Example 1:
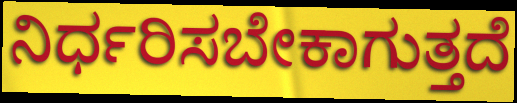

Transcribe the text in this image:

ನಿರ್ಧರಿಸಬೇಕಾಗುತ್ತದೆ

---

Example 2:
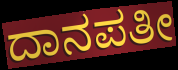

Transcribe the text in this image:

ದಾನಪತೀ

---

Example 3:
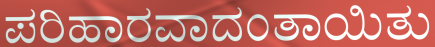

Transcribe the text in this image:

ಪರಿಹಾರವಾದಂತಾಯಿತು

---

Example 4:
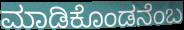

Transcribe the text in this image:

ಮಾಡಿಕೊಂಡನೆಂಬ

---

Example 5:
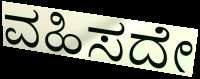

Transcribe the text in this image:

ವಹಿಸದೇ